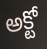
అక్టో